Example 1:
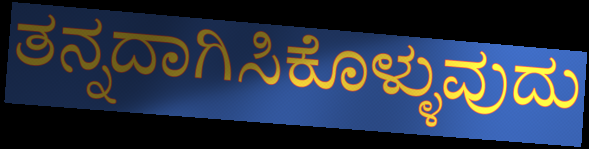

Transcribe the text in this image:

ತನ್ನದಾಗಿಸಿಕೊಳ್ಳುವುದು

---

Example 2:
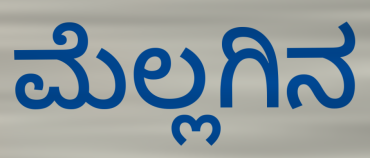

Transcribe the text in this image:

ಮೆಲ್ಲಗಿನ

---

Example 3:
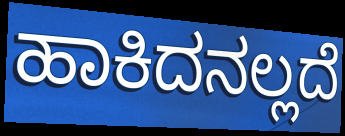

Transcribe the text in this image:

ಹಾಕಿದನಲ್ಲದೆ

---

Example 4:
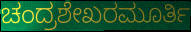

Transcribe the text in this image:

ಚಂದ್ರಶೇಖರಮೂರ್ತಿ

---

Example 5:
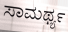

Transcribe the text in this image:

ಸಾಮರ್ಥ್ಯ